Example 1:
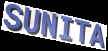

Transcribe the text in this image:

SUNITA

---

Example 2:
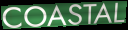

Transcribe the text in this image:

COASTAL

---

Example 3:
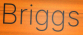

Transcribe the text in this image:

Briggs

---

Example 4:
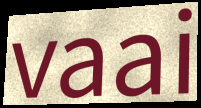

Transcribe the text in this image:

vaai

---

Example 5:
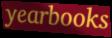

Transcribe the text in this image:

yearbooks